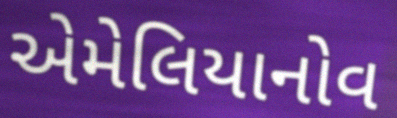
એમેલિયાનોવ